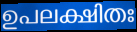
ഉപലക്ഷിതഃ